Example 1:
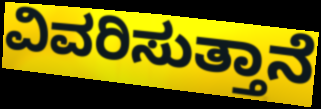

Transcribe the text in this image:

ವಿವರಿಸುತ್ತಾನೆ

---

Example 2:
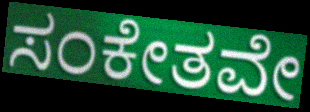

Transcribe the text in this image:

ಸಂಕೇತವೇ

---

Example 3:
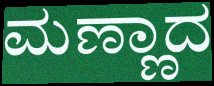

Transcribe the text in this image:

ಮಣ್ಣಾದ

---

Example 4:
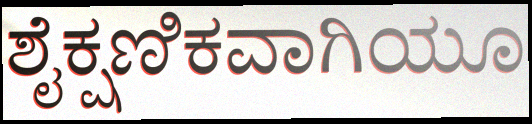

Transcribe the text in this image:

ಶೈಕ್ಷಣಿಕವಾಗಿಯೂ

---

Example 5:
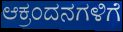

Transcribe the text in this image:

ಆಕ್ರಂದನಗಳಿಗೆ